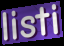
listi